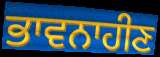
ਭਾਵਨਾਹੀਣ